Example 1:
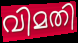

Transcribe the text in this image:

വിമതി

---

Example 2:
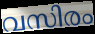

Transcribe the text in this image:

വസിരം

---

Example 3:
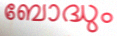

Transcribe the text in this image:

ബോദ്ധും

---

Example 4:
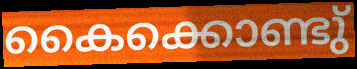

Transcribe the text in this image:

കൈക്കൊണ്ടു്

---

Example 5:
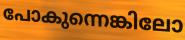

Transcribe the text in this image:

പോകുന്നെങ്കിലോ